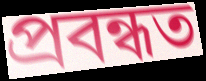
প্ৰবন্ধত